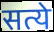
सत्ये